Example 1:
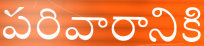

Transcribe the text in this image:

పరివారానికి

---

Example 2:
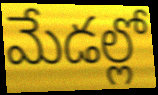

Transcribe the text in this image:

మేడల్లో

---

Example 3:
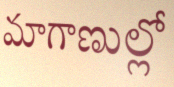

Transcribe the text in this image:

మాగాణుల్లో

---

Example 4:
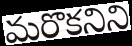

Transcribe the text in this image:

మరొకనిని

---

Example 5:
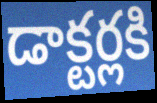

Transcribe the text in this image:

డాక్టర్లకి